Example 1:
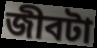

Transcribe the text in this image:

জীবটা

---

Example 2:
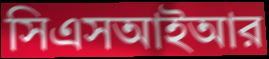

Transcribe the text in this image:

সিএসআইআর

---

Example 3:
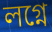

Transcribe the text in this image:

লগ্নে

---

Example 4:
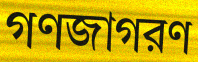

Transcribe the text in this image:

গণজাগরণ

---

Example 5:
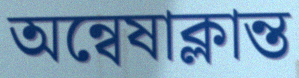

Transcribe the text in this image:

অন্বেষাক্লান্ত